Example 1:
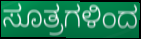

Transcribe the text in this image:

ಸೂತ್ರಗಳಿಂದ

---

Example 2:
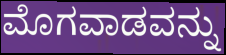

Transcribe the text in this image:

ಮೊಗವಾಡವನ್ನು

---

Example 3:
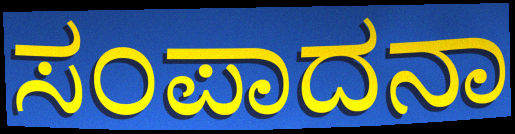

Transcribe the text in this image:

ಸಂಪಾದನಾ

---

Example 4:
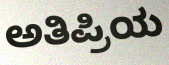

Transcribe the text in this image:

ಅತಿಪ್ರಿಯ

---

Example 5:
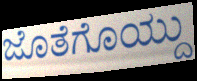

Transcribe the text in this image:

ಜೊತೆಗೊಯ್ದು